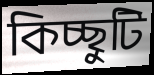
কিচ্ছুটি